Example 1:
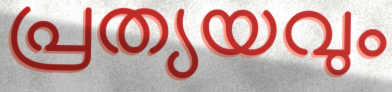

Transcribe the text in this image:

പ്രത്യയവും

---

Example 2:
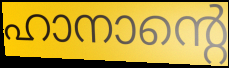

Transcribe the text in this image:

ഹാനാന്റെ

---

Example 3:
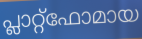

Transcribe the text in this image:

പ്ലാറ്റ്ഫോമായ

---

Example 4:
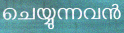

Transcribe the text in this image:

ചെയ്യുന്നവൻ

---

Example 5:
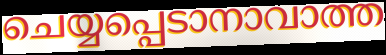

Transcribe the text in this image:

ചെയ്യപ്പെടാനാവാത്ത